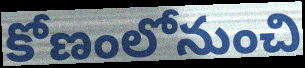
కోణంలోనుంచి